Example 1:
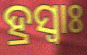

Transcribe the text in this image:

ହ୍ରସ୍ଵାଃ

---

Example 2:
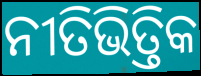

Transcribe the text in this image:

ନୀତିଭିତ୍ତିକ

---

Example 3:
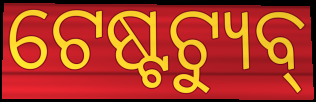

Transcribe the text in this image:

ଟେଷ୍ଟଟ୍ୟୁବ୍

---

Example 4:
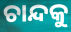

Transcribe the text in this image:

ଚାନ୍ଦକୁ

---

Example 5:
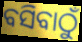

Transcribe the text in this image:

ବସିବାଠୁଁ